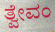
ತ್ವೇವಂ